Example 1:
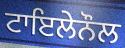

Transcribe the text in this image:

ਟਾਇਲੇਨੌਲ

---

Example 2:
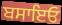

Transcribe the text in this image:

ਬਸਾਇਓ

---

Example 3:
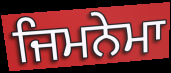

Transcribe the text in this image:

ਜਿਮਨੇਮਾ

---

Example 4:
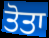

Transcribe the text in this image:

ਤੋਤਾ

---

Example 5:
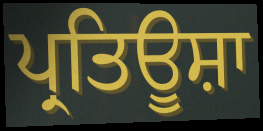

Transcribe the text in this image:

ਪ੍ਰਤਿਊਸ਼ਾ